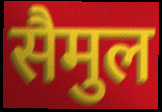
सैमुल